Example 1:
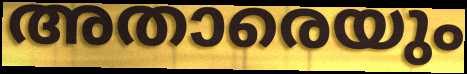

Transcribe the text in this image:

അതാരെയും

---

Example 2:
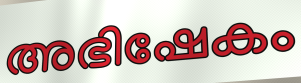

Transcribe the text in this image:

അഭിഷേകം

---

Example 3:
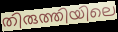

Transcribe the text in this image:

തിരുത്തിയിലെ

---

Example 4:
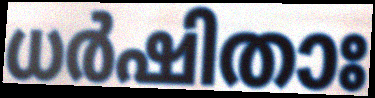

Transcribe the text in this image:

ധർഷിതാഃ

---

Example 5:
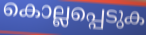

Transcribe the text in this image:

കൊല്ലപ്പെടുക